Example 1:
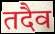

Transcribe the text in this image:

तदैव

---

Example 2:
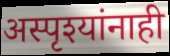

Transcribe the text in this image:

अस्पृश्यांनाही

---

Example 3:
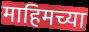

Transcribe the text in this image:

माहिमच्या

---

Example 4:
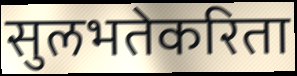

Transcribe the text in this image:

सुलभतेकरिता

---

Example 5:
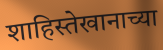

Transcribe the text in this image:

शाहिस्तेखानाच्या